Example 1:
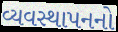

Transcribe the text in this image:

વ્યવસ્થાપનનો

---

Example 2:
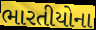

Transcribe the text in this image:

ભારતીયોના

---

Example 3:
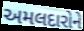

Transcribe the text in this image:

અમલદારોને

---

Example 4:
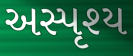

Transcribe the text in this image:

અસ્પૃશ્ય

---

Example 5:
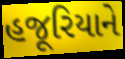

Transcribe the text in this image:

હજૂરિયાને